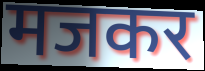
मजकर